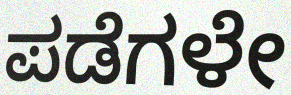
ಪಡೆಗಳೇ